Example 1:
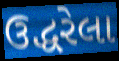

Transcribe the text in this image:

ઉદ્ધરેલા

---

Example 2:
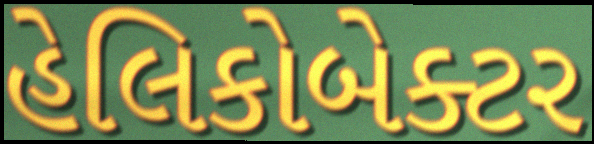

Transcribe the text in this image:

હેલિકોબેક્ટર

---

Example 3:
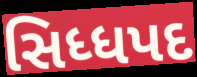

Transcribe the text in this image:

સિધ્ધપદ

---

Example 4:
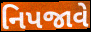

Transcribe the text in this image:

નિપજાવે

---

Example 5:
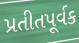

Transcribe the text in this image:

પ્રતીતપૂર્વક